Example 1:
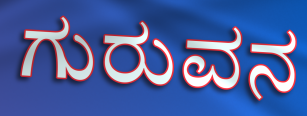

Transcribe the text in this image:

ಗುರುವನ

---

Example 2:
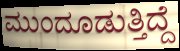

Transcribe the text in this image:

ಮುಂದೂಡುತ್ತಿದ್ದೆ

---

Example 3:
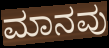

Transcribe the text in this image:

ಮಾನವು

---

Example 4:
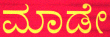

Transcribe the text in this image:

ಮಾಡೇ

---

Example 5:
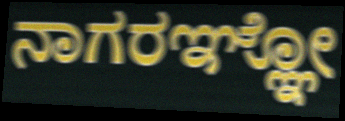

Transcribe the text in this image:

ನಾಗರಞ್ಞೋ